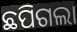
ଛପିଗଲା